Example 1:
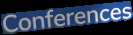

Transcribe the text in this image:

Conferences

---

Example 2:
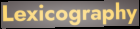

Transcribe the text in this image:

Lexicography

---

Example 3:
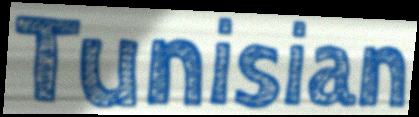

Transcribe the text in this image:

Tunisian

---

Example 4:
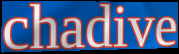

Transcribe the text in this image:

chadive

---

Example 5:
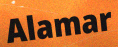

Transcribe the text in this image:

Alamar